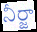
నీర్జా